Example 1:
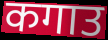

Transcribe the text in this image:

कगाउ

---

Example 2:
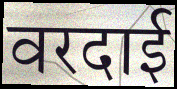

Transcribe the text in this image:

वरदाई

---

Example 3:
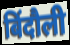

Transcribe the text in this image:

बिंदौली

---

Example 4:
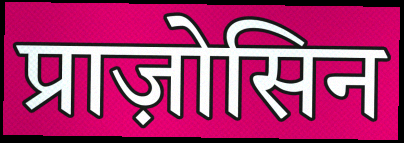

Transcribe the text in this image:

प्राज़ोसिन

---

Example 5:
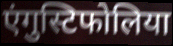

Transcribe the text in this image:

एंगुस्टिफोलिया